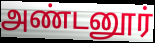
அண்டனூர்